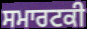
ਸਮਾਰਟਕੀ